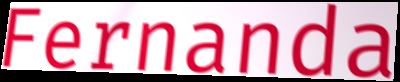
Fernanda